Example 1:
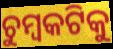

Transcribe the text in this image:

ଚୁମ୍ବକଟିକୁ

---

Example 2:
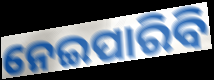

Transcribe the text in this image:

ନେଇପାରିବି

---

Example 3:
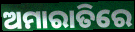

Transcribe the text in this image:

ଅମାରାତିରେ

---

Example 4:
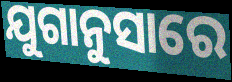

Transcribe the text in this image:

ଯୁଗାନୁସାରେ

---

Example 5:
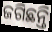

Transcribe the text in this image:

ଜଗିଛନ୍ତି